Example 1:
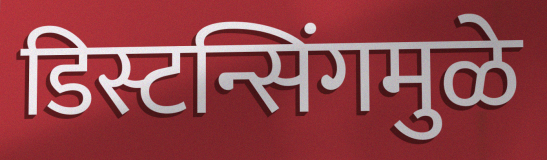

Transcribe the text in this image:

डिस्टन्सिंगमुळे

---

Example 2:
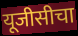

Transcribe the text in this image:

यूजीसीचा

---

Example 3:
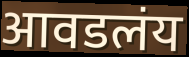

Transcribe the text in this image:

आवडलंय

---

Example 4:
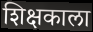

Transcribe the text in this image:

शिक्षकाला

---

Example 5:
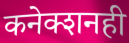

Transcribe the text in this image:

कनेक्शनही